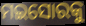
ମଇସୋରକୁ